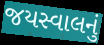
જયસ્વાલનું